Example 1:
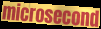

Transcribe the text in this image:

microsecond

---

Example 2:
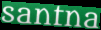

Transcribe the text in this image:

santna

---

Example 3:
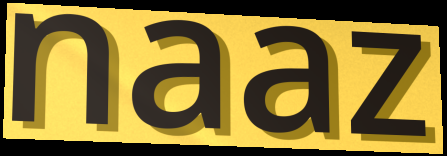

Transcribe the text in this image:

naaz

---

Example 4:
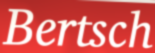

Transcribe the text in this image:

Bertsch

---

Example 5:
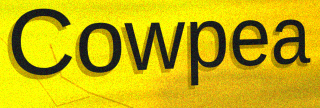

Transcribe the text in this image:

Cowpea